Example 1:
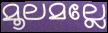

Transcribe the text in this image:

മൂലമല്ലേ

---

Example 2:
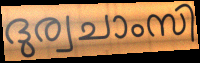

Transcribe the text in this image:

ദുര്വചാംസി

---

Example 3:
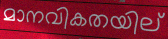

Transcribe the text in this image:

മാനവികതയില്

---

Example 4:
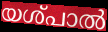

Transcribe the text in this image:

യശ്പാൽ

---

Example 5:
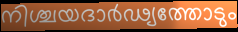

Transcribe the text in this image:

നിശ്ചയദാർഢ്യത്തോടും